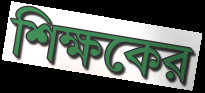
শিক্ষকের